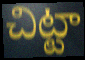
చిట్టా